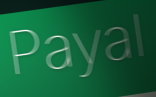
Payal